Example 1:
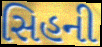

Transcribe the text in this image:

સિહની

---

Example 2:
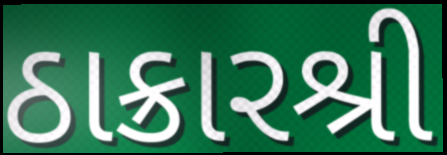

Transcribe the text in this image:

ઠાક્રારશ્રી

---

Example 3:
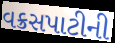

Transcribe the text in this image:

વક્રસપાટીની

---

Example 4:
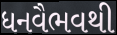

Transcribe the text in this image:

ધનવૈભવથી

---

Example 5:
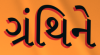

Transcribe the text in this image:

ગ્રંથિને